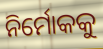
ନିର୍ମୋକକୁ